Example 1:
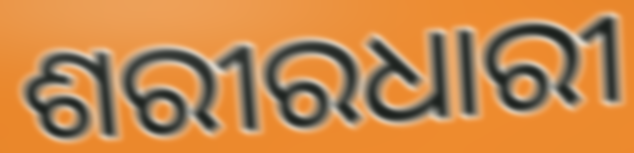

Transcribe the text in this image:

ଶରୀରଧାରୀ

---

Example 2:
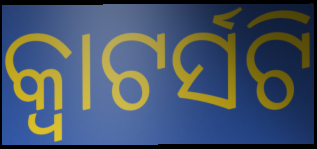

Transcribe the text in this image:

କ୍ୱାଟର୍ସଟି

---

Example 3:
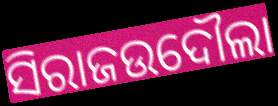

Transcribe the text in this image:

ସିରାଜଉଦୌଲା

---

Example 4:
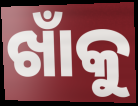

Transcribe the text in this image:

ଖାଁକୁ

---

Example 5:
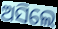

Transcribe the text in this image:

ଅସିଲେ